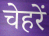
चेहरें